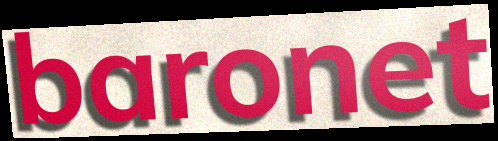
baronet